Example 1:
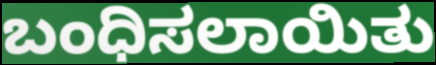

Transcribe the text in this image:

ಬಂಧಿಸಲಾಯಿತು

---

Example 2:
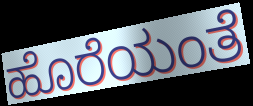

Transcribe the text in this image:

ಹೊರೆಯಂತೆ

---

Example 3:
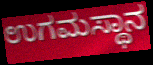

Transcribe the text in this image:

ಉಗಮಸ್ಥಾನ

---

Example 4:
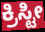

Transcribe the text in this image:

ಕ್ರಿಸ್ಟೀ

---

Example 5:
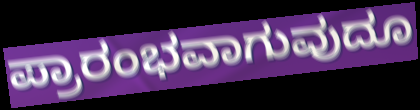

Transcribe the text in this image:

ಪ್ರಾರಂಭವಾಗುವುದೂ